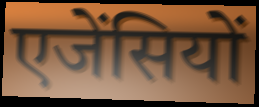
एजेंसियों